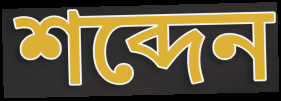
শব্দেন